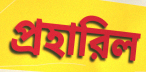
প্রহারিল